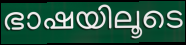
ഭാഷയിലൂടെ